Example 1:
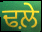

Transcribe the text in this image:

ਢਲ਼ੇ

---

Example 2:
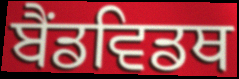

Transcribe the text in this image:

ਬੈਂਡਵਿਡਥ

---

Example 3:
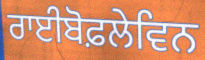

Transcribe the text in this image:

ਰਾਈਬੋਫ਼ਲੇਵਿਨ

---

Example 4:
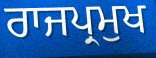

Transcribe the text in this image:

ਰਾਜਪ੍ਰਮੁਖ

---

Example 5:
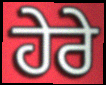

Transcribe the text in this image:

ਹੇਰੇ